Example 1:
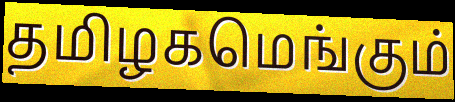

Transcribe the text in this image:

தமிழகமெங்கும்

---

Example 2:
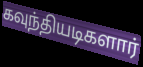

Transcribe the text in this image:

கவுந்தியடிகளார்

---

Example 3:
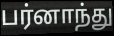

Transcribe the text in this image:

பர்னாந்து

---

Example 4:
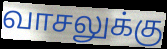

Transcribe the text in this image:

வாசலுக்கு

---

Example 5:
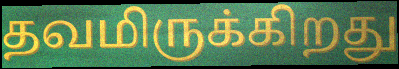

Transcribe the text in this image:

தவமிருக்கிறது